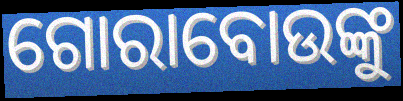
ଗୋରାବୋଉଙ୍କୁ